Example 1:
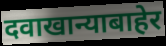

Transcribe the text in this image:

दवाखान्याबाहेर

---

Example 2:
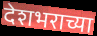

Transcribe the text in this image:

देशभराच्या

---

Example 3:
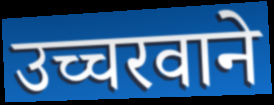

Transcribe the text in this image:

उच्चरवाने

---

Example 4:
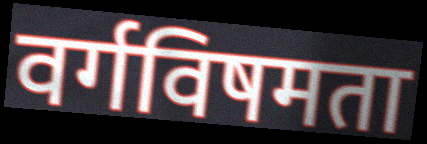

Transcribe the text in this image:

वर्गविषमता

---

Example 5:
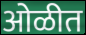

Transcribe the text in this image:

ओळीत